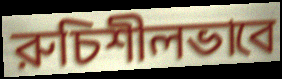
রুচিশীলভাবে